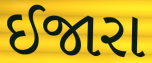
ઈજારા